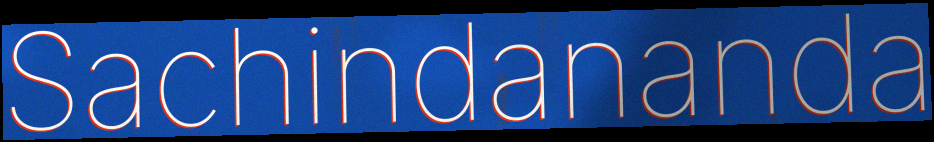
Sachindananda